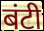
बंटी